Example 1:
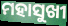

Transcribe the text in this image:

ମହାସୁଖୀ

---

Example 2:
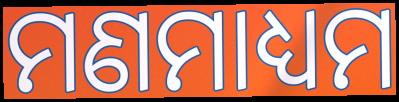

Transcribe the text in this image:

ମଣମାଧ୍ୟମ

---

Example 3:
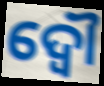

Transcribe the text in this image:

ଦ୍ଵୌ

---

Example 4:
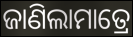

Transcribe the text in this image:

ଜାଣିଲାମାତ୍ରେ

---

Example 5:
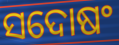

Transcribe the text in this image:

ସଦୋଷଂ